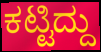
ಕಟ್ಟಿದ್ದು